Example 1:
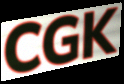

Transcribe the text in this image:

CGK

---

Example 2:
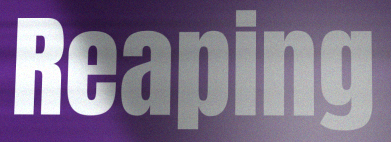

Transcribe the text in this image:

Reaping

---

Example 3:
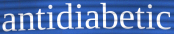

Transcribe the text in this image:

antidiabetic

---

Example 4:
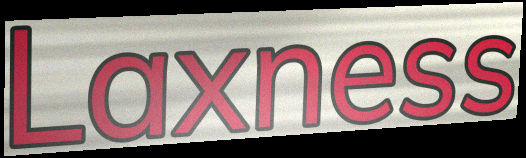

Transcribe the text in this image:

Laxness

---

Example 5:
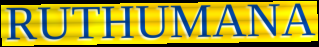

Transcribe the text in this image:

RUTHUMANA